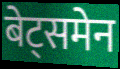
बेट्समेन